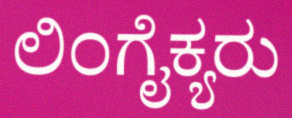
ಲಿಂಗೈಕ್ಯರು